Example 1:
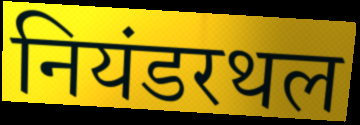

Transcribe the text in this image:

नियंडरथल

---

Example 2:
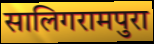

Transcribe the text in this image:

सालिगरामपुरा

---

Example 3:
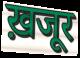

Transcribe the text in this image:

ख़जूर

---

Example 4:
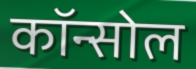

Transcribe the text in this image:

कॉन्सोल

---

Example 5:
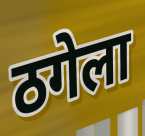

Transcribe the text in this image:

ठगेला